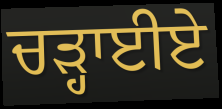
ਚੜ੍ਹਾਈਏ